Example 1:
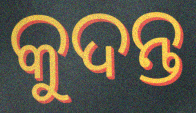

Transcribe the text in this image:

କୁଦନ୍ତ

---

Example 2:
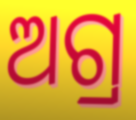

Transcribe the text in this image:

ଅଗ୍ର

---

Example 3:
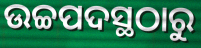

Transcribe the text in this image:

ଉଚ୍ଚପଦସ୍ଥଠାରୁ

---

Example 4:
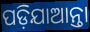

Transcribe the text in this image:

ପଡ଼ିଯାଆନ୍ତା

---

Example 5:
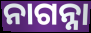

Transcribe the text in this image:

ନାଗନ୍ନା